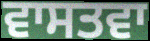
ਵਾਸਤਵਾ